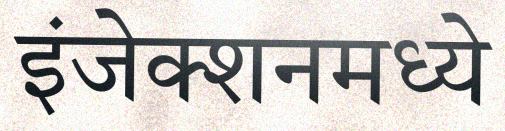
इंजेक्शनमध्ये